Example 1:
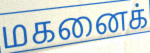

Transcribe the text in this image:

மகனைக்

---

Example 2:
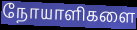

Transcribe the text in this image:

நோயாளிகளை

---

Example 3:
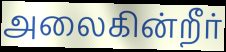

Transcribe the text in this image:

அலைகின்றீர்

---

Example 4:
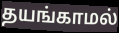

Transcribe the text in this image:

தயங்காமல்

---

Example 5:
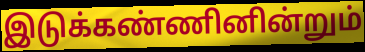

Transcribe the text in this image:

இடுக்கண்ணினின்றும்